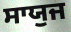
ਸਾਯੁਜ